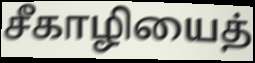
சீகாழியைத்